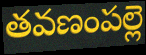
తవణంపల్లె